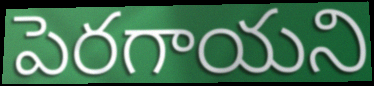
పెరగాయని